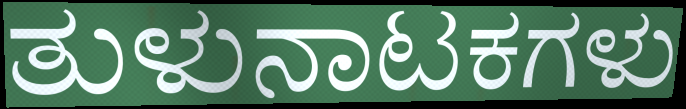
ತುಳುನಾಟಕಗಳು